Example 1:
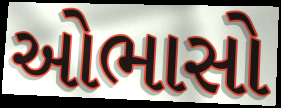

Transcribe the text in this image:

ઓભાસો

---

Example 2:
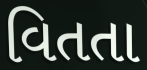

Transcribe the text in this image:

વિતતા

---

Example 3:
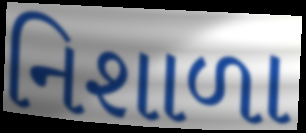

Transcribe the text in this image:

નિશાળા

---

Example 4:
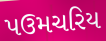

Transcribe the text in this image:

પઉમચરિય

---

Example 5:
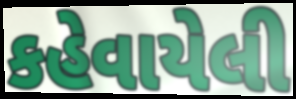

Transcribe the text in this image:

કહેવાયેલી